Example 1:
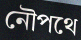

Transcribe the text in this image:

নৌপথে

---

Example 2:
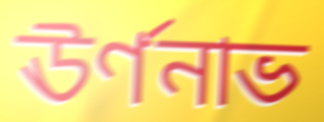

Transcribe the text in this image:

ঊর্ণনাভ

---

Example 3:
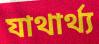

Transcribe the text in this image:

যাথার্থ্য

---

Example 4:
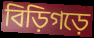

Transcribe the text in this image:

বিড়িগড়ে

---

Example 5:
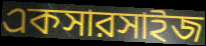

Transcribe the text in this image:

একসারসাইজ